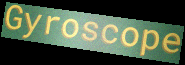
Gyroscope